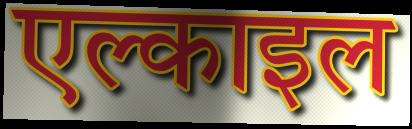
एल्काइल